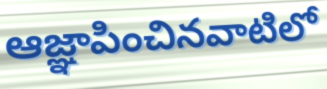
ఆజ్ఞాపించినవాటిలో